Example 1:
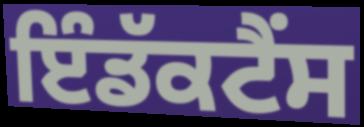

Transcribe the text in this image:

ਇੰਡੱਕਟੈਂਸ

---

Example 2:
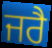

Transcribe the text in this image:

ਜਰੈ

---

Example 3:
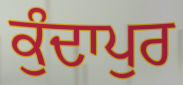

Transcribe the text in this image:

ਕੁੰਦਾਪੁਰ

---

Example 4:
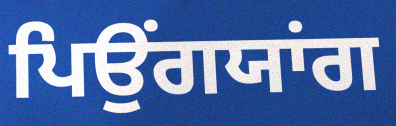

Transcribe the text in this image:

ਪਿਉਂਗਯਾਂਗ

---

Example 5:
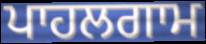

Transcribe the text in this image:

ਪਾਹਲਗਾਮ